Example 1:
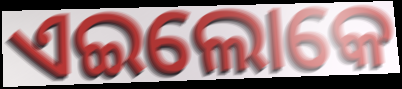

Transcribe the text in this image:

ଏଇଲୋକେ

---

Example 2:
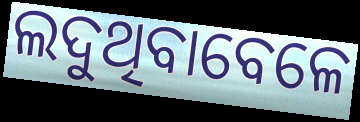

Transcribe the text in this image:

ଲଦୁଥିବାବେଳେ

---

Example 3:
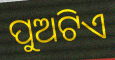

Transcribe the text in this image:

ପୁଅଟିଏ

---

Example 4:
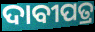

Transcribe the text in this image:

ଦାବୀପତ୍ର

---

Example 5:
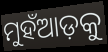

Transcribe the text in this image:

ମୁହଁଆଡ଼କୁ